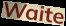
Waite